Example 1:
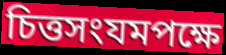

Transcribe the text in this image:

চিত্তসংযমপক্ষে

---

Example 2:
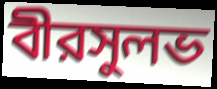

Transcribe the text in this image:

বীরসুলভ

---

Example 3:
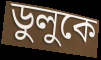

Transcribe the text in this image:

ডুলুকে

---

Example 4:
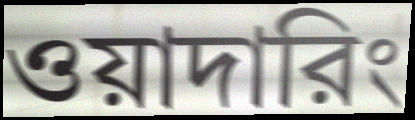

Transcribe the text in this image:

ওয়াদারিং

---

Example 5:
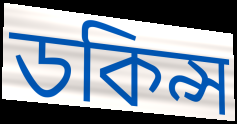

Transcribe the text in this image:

ডকিন্স